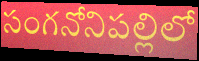
సంగనోనిపల్లిలో